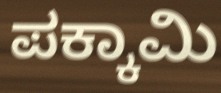
ಪಕ್ಕಾಮಿ